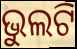
ଭୁଲଟି